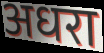
अधरा